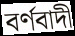
বর্ণবাদী